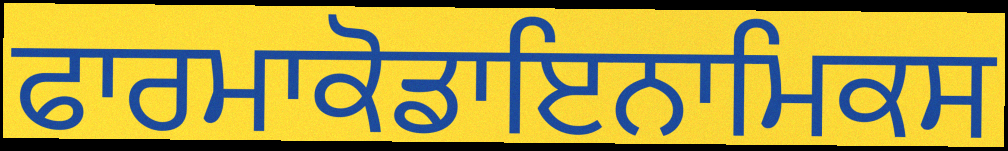
ਫਾਰਮਾਕੋਡਾਇਨਾਮਿਕਸ